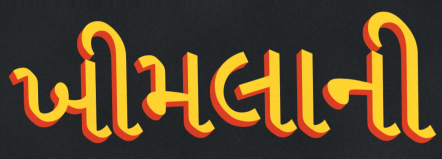
ખીમલાની